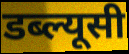
डब्ल्यूसी